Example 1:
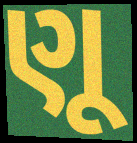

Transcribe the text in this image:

ણૂ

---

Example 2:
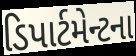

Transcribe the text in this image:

ડિપાર્ટમેન્ટના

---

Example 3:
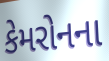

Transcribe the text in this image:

કેમરોનના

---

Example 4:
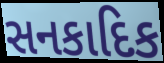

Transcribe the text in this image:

સનકાદિક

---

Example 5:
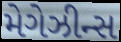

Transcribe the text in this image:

મેગેઝીન્સ